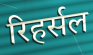
रिहर्सल